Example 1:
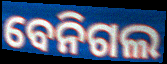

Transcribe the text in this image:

ବେନିଗଲ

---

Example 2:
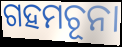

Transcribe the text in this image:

ଗହମଚୂନା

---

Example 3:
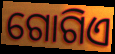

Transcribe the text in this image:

ଗୋଗିଏ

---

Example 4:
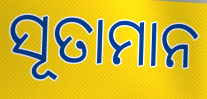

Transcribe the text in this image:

ସୂତାମାନ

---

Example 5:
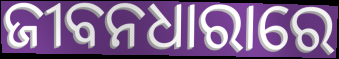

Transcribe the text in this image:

ଜୀବନଧାରାରେ